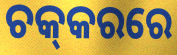
ଚକ୍‌କରରେ